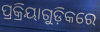
ପ୍ରକ୍ରିୟାଗୁଡ଼ିକରେ